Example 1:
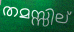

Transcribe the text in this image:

തമസ്സില്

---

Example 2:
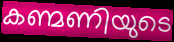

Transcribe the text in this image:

കണ്മണിയുടെ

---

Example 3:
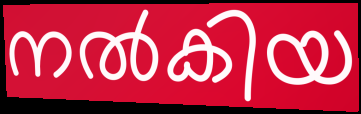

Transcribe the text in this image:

നൽകിയ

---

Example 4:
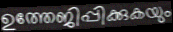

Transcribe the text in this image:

ഉത്തേജിപ്പിക്കുകയും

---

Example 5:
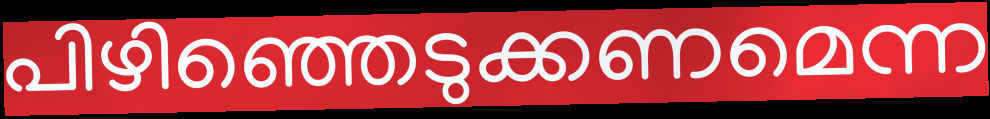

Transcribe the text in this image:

പിഴിഞ്ഞെടുക്കണമെന്ന